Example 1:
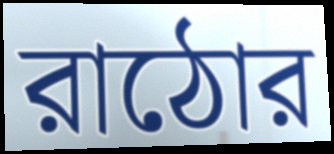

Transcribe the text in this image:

রাঠোর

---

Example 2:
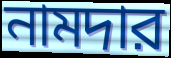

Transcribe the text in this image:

নামদার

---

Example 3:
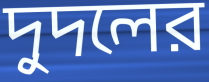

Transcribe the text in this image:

দুদলের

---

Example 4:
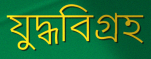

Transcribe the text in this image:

যুদ্ধবিগ্রহ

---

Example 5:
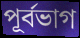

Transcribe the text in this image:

পূর্বভাগ